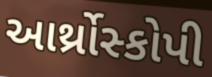
આર્થ્રોસ્કોપી